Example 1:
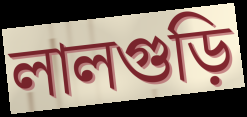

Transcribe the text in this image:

লালগুড়ি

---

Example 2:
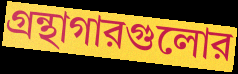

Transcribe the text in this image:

গ্রন্থাগারগুলোর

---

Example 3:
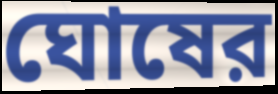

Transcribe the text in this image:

ঘোষের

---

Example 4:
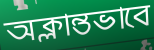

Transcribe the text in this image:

অক্লান্তভাবে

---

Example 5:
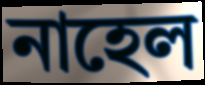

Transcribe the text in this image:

নাহেল